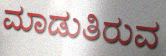
ಮಾಡುತಿರುವ